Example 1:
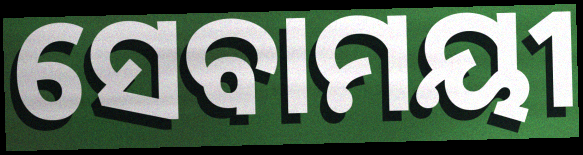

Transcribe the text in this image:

ସେବାମୟୀ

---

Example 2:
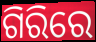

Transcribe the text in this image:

ଗିରିରେ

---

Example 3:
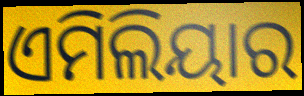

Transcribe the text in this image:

ଏମିଲିୟାର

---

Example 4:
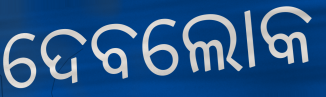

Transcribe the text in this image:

ଦେବଲୋକ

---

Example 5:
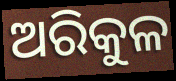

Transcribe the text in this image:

ଅରିକୁଳ